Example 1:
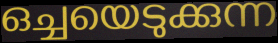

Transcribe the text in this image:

ഒച്ചയെടുക്കുന്ന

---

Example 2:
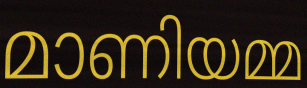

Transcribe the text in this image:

മാണിയമ്മ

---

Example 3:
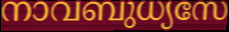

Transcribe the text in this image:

നാവബുധ്യസേ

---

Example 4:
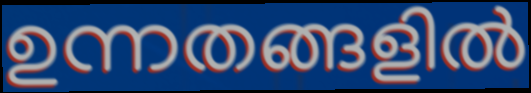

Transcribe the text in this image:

ഉന്നതങ്ങളിൽ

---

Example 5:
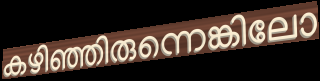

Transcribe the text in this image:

കഴിഞ്ഞിരുന്നെങ്കിലോ